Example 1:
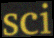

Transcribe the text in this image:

sci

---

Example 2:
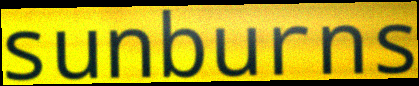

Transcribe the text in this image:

sunburns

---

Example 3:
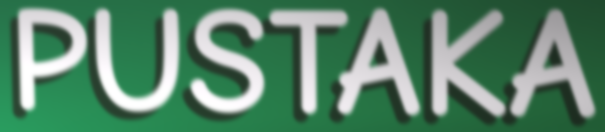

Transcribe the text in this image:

PUSTAKA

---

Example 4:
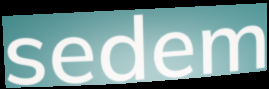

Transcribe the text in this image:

sedem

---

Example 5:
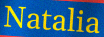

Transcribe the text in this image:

Natalia